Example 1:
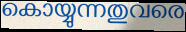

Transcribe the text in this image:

കൊയ്യുന്നതുവരെ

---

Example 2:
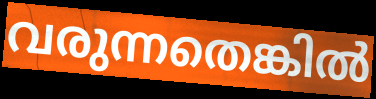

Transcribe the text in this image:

വരുന്നതെങ്കിൽ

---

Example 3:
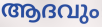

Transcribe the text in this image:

ആദവും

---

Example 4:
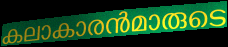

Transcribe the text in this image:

കലാകാരൻമാരുടെ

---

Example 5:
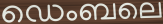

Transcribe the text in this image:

ഡെംബലെ